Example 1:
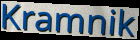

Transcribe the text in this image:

Kramnik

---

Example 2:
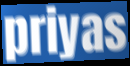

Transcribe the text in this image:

priyas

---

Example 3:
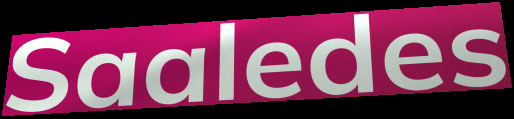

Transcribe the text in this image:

Saaledes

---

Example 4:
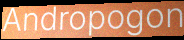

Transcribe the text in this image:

Andropogon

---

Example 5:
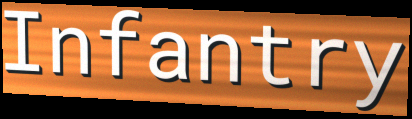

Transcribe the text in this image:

Infantry